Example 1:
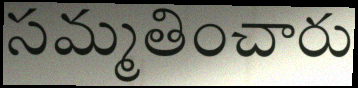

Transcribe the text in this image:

సమ్మతించారు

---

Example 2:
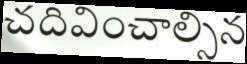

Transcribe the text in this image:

చదివించాల్సిన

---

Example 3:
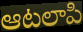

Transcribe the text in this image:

ఆటలాపి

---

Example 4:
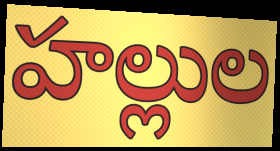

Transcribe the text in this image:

హల్లుల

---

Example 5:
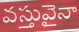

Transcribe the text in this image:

వస్తువైనా